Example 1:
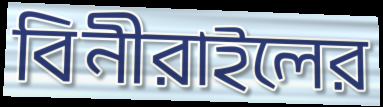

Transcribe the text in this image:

বিনীরাইলের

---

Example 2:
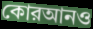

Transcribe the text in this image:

কোরআনও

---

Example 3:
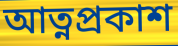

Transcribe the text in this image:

আত্নপ্রকাশ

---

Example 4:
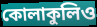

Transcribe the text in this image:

কোলাকুলিও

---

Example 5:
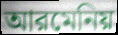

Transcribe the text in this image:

আরমেনিয়